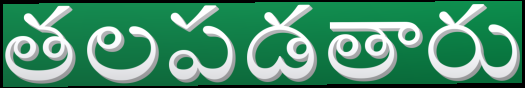
తలపడతారు